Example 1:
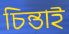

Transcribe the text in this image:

চিন্তাই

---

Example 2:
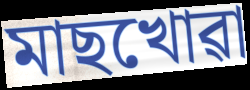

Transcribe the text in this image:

মাছখোৱা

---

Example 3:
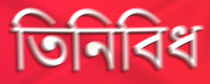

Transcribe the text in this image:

তিনিবিধ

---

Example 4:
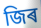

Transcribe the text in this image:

জিৰ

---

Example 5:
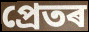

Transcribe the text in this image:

প্ৰেতৰ